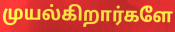
முயல்கிறார்களே